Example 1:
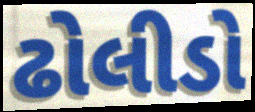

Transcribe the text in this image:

ઢોલીડો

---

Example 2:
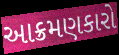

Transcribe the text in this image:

આક્રમણકારો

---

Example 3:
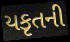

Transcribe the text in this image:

યકૃતની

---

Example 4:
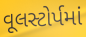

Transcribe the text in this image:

વૂલસ્ટોર્પમાં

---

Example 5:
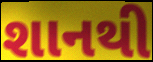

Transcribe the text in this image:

શાનથી